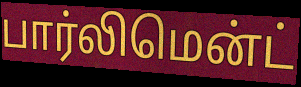
பார்லிமென்ட்